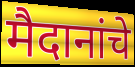
मैदानांचे